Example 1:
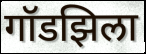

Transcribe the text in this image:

गॉडझिला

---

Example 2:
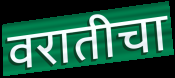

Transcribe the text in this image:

वरातीचा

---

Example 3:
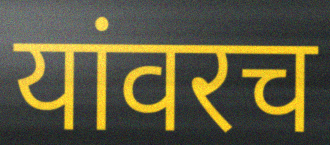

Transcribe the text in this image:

यांवरच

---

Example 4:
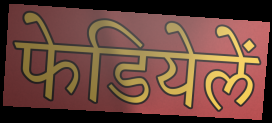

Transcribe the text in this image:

फेडियेलें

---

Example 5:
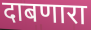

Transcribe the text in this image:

दाबणारा